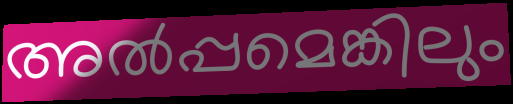
അൽപ്പമെങ്കിലും